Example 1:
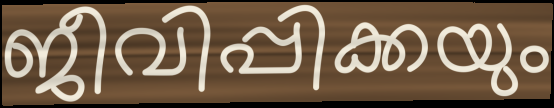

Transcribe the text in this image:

ജീവിപ്പിക്കയും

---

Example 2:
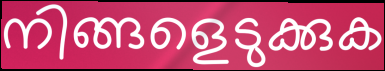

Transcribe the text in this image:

നിങ്ങളെടുക്കുക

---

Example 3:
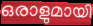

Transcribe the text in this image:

ഒരാളുമായി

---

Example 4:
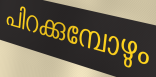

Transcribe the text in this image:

പിറക്കുമ്പോഴും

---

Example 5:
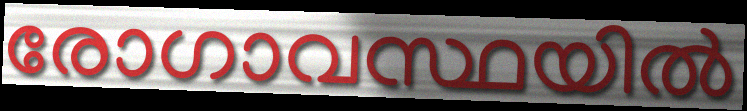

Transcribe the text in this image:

രോഗാവസ്ഥയിൽ